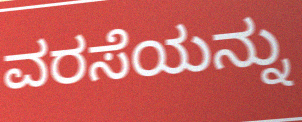
ವರಸೆಯನ್ನು